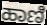
ಹಾಣಿ